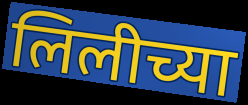
लिलीच्या